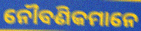
ନୌବଣିକମାନେ